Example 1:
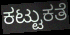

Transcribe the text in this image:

ಕಟ್ಟುಕತೆ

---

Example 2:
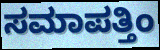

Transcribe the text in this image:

ಸಮಾಪತ್ತಿಂ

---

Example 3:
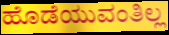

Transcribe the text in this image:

ಹೊಡೆಯುವಂತಿಲ್ಲ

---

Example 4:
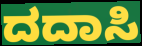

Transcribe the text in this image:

ದದಾಸಿ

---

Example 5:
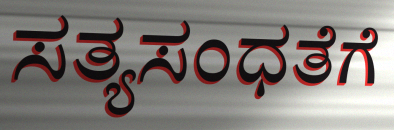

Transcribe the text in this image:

ಸತ್ಯಸಂಧತೆಗೆ